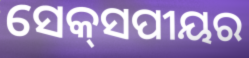
ସେକ୍‌ସପୀୟର